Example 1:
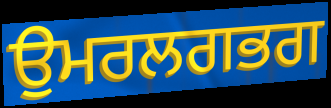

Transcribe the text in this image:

ਉੁਮਰਲਗਭਗ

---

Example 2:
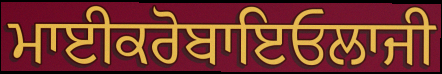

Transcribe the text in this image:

ਮਾਈਕਰੋਬਾਇਓਲਾਜੀ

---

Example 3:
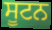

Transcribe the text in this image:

ਸੂਟਨ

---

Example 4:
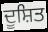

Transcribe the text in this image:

ਦੂਸ਼ਿਤ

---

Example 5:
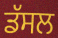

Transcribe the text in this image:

ਡੱਸਲ